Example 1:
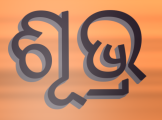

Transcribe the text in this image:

ଶୂଭ୍ର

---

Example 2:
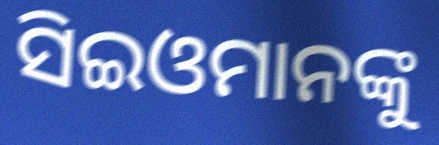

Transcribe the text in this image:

ସିଇଓମାନଙ୍କୁ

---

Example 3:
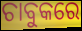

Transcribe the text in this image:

ଚାବୁକରେ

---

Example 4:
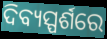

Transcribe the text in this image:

ଦିବ୍ୟସ୍ପର୍ଶରେ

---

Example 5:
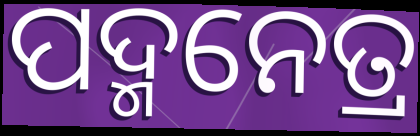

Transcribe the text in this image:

ପଦ୍ମନେତ୍ର